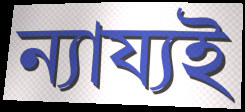
ন্যায্যই